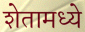
शेतामध्ये